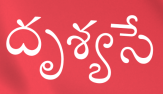
దృశ్యసే